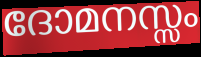
ദോമനസ്സം